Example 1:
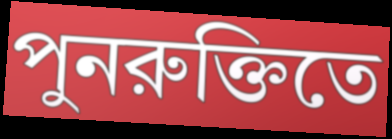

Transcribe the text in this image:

পুনরুক্তিতে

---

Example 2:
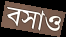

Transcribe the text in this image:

বসাও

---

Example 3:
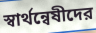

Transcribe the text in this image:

স্বার্থন্বেষীদের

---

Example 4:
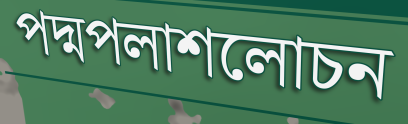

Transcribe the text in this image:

পদ্মপলাশলোচন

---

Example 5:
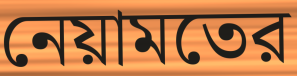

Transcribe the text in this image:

নেয়ামতের